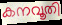
കനവൂതി